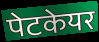
पेटकेयर